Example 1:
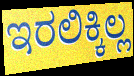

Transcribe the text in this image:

ಇರಲಿಕ್ಕಿಲ್ಲ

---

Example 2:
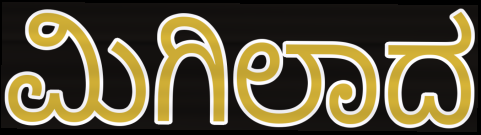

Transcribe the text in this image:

ಮಿಗಿಲಾದ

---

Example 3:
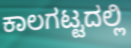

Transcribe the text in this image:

ಕಾಲಗಟ್ಟದಲ್ಲಿ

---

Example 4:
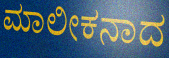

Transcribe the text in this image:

ಮಾಲೀಕನಾದ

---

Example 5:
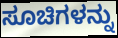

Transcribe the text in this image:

ಸೂಚಿಗಳನ್ನು